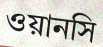
ওয়ানসি